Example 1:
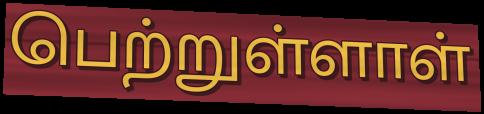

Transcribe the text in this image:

பெற்றுள்ளாள்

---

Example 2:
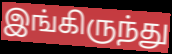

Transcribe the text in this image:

இங்கிருந்து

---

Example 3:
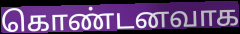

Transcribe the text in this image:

கொண்டனவாக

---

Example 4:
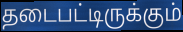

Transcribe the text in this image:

தடைபட்டிருக்கும்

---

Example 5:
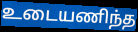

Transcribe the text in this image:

உடையணிந்த